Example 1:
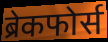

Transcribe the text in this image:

ब्रेकफोर्स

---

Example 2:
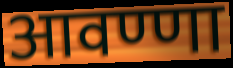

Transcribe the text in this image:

आवण्णा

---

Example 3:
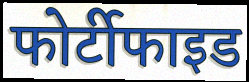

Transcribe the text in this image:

फोर्टीफाइड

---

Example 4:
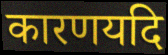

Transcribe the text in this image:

कारणयदि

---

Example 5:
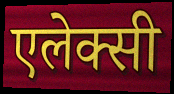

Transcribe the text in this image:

एलेक्सी